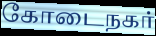
கோடைநகர்